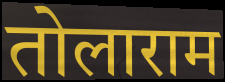
तोलाराम